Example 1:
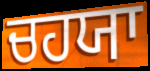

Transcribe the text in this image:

ਚਹਯਾ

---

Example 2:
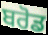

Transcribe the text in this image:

ਬਰੋਡ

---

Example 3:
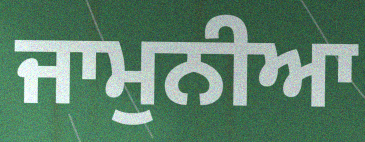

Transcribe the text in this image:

ਜਾਮੁਨੀਆ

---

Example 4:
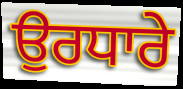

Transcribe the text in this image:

ਉਰਧਾਰੇ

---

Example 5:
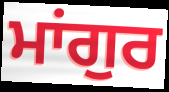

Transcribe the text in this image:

ਮਾਂਗੁਰ